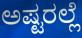
ಅಷ್ಟರಲ್ಲೆ